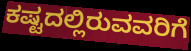
ಕಷ್ಟದಲ್ಲಿರುವವರಿಗೆ